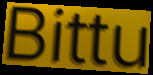
Bittu